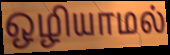
ஒழியாமல்